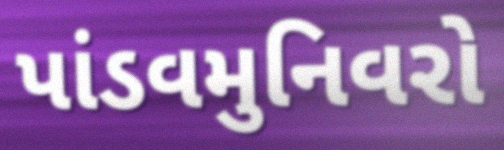
પાંડવમુનિવરો